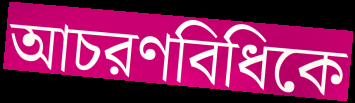
আচরণবিধিকে